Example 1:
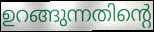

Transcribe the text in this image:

ഉറങ്ങുന്നതിന്റെ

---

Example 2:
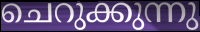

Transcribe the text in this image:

ചെറുക്കുന്നു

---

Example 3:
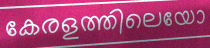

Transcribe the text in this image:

കേരളത്തിലെയോ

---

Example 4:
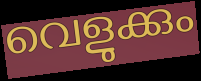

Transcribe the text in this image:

വെളുക്കും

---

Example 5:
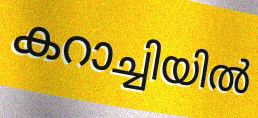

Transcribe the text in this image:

കറാച്ചിയിൽ